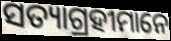
ସତ୍ୟାଗ୍ରହୀମାନେ